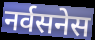
नर्वसनेस